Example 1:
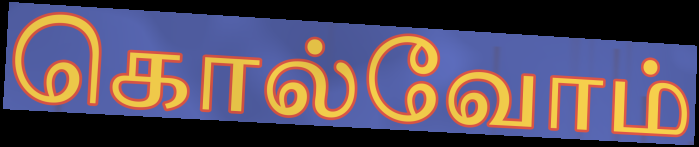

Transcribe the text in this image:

கொல்வோம்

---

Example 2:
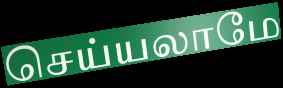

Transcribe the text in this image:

செய்யலாமே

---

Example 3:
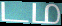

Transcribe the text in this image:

டம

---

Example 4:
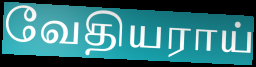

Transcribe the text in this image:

வேதியராய்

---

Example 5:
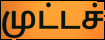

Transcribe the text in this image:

முட்டச்